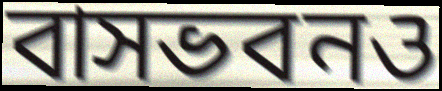
বাসভবনও